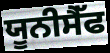
ਯੂਨੀਸੈੱਫ